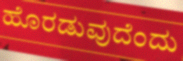
ಹೊರಡುವುದೆಂದು